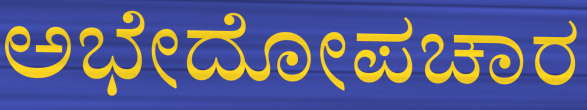
ಅಭೇದೋಪಚಾರ